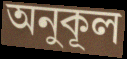
অনুকূল